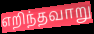
எறிந்தவாறு